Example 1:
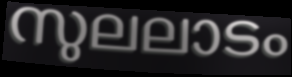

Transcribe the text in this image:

സുലലാടം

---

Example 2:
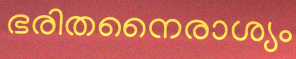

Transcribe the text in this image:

ഭരിതനൈരാശ്യം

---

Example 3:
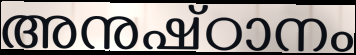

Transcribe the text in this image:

അനുഷ്‌ഠാനം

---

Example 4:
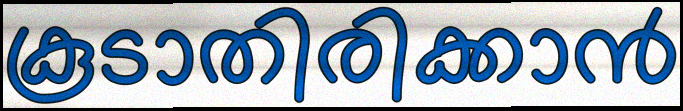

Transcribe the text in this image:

കൂടാതിരിക്കാൻ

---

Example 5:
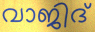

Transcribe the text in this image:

വാജിദ്